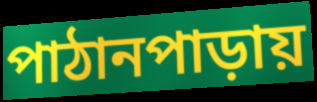
পাঠানপাড়ায়